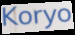
Koryo